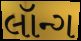
લૉન્ગ